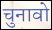
चुनावो